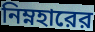
নিম্নহারের